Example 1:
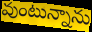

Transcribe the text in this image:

వుంటున్నాను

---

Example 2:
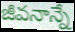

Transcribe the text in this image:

జీవనాన్నే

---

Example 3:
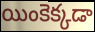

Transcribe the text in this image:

యింకెక్కడా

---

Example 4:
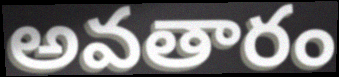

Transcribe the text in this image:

అవతారం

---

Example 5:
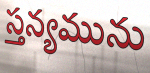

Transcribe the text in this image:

స్తన్యమును